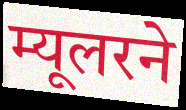
म्यूलरने